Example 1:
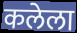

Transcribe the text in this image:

कलेला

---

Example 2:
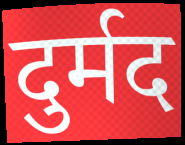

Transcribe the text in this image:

दुर्मद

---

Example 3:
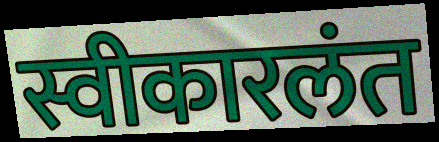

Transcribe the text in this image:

स्वीकारलंत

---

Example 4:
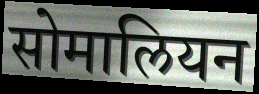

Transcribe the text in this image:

सोमालियन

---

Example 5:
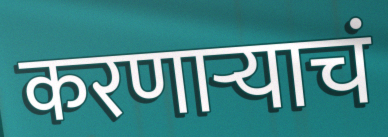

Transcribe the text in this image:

करणाऱ्याचं